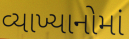
વ્યાખ્યાનોમાં